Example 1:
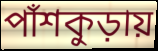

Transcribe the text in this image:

পাঁশকুড়ায়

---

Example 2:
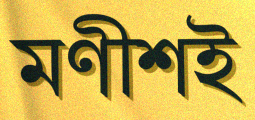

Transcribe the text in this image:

মণীশই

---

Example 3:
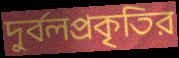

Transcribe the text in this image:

দুর্বলপ্রকৃতির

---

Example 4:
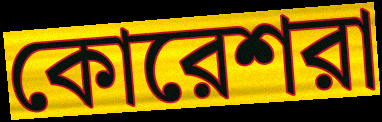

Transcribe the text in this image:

কোরেশরা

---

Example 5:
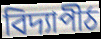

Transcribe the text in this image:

বিদ্যাপীঠ